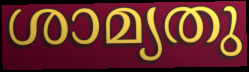
ശാമ്യതു